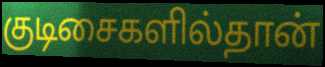
குடிசைகளில்தான்